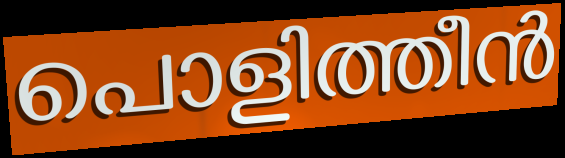
പൊളിത്തീൻ